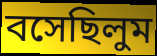
বসেছিলুম